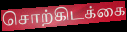
சொற்கிடக்கை